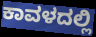
ಕಾವಳದಲ್ಲಿ